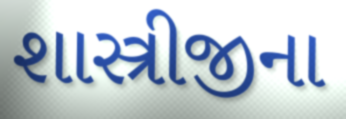
શાસ્ત્રીજીના